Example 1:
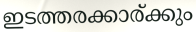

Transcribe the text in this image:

ഇടത്തരക്കാര്ക്കും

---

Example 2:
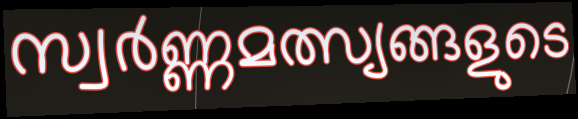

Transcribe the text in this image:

സ്വർണ്ണമത്സ്യങ്ങളുടെ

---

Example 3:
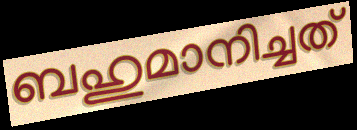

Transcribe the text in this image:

ബഹുമാനിച്ചത്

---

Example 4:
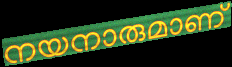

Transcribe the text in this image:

നയനാരുമാണ്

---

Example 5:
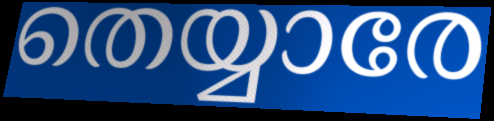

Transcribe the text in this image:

തെയ്യാരേ